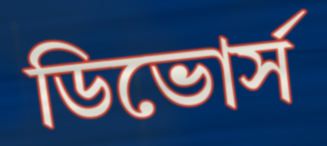
ডিভোর্স